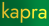
kapra